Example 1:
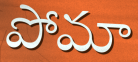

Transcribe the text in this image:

పోమా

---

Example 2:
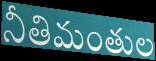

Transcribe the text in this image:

నీతిమంతుల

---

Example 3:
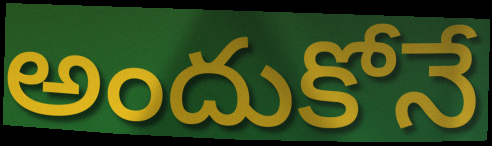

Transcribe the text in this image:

అందుకోనే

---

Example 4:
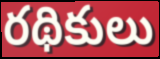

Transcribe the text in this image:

రథికులు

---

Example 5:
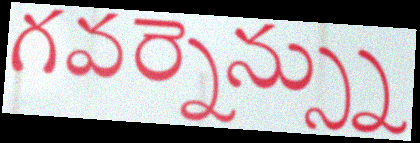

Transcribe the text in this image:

గవర్నెన్స్ను